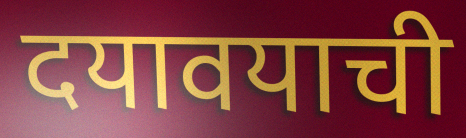
दयावयाची